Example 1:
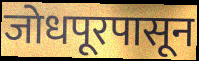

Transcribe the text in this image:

जोधपूरपासून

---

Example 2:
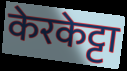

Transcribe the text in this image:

केरकेट्टा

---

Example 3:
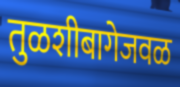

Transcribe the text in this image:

तुळशीबागेजवळ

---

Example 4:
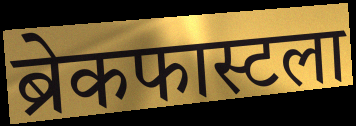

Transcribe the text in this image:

ब्रेकफास्टला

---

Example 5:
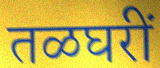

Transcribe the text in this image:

तळघरीं